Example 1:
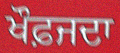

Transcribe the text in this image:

ਖੌਫ਼ਜਦਾ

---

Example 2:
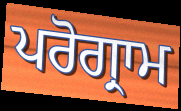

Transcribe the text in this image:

ਪਰੋਗ੍ਰਾਮ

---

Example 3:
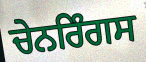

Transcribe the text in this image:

ਚੇਨਰਿੰਗਸ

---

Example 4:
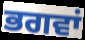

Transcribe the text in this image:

ਭਗਵਾਂ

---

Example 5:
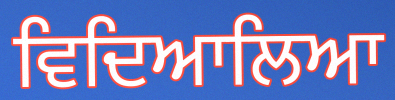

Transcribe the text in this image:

ਵਿਦਿਆਲਿਆ